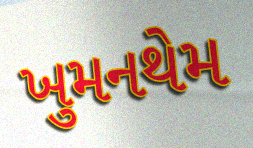
ખુમનથેમ